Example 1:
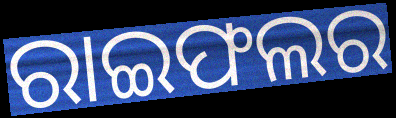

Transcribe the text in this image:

ରାଇଫଲର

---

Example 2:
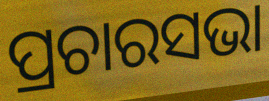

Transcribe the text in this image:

ପ୍ରଚାରସଭା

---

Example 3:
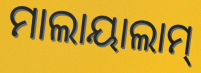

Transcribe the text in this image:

ମାଲାୟାଲାମ୍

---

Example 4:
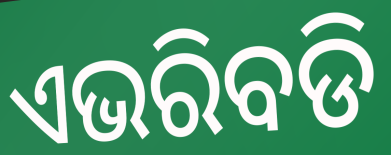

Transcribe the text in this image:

ଏଭରିବଡି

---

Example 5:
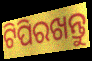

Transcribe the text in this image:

ଟିପିରଖନ୍ତୁ